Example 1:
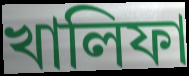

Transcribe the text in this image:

খালিফা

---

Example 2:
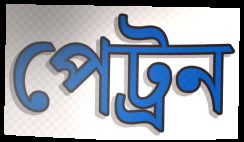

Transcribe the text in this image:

পেট্ৰন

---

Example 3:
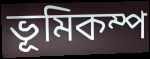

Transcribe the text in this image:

ভূমিকম্প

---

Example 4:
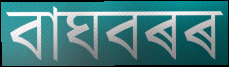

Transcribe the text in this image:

বাঘবৰৰ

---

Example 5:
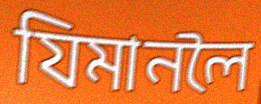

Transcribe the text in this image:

যিমানলৈ